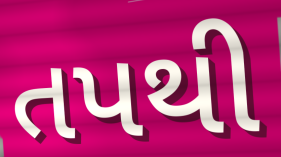
તપથી